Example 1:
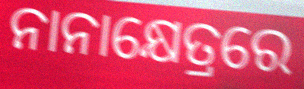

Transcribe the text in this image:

ନାନାକ୍ଷେତ୍ରରେ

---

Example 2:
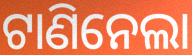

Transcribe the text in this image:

ଟାଣିନେଲା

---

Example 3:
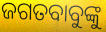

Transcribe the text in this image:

ଜଗତବାବୁଙ୍କୁ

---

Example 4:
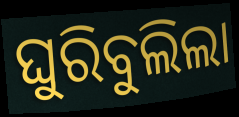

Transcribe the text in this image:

ଘୁରିବୁଲିଲା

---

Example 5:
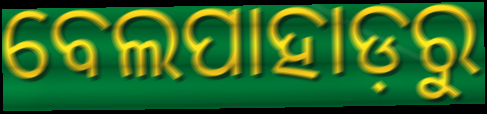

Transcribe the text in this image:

ବେଲପାହାଡ଼ରୁ